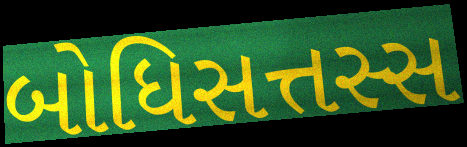
બોધિસત્તસ્સ